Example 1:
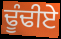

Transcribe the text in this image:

ਢੂੰਢੀਏ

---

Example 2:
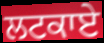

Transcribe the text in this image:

ਲਟਕਾਏ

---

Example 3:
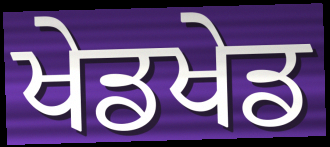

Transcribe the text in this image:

ਖੇਡਖੇਡ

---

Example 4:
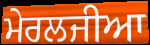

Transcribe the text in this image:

ਮੇਰਲਜੀਆ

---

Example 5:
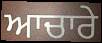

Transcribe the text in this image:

ਆਚਾਰੇ